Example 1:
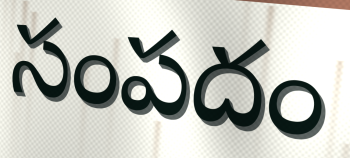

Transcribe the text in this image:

సంపదం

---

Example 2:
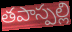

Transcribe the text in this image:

తపాస్పల్లి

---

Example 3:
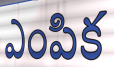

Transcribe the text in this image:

ఎంపిక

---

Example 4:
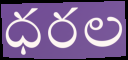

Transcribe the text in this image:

ధరల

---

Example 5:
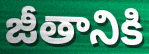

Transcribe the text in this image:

జీతానికి